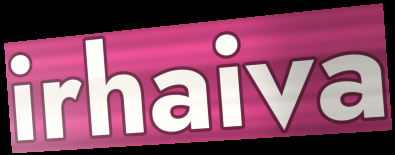
irhaiva